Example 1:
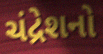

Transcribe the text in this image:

ચંદ્રેશનો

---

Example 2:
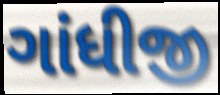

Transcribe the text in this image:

ગાંધીજી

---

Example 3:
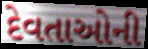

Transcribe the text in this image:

દેવતાઓની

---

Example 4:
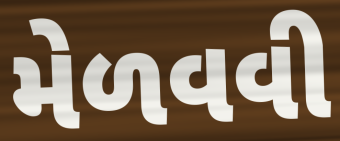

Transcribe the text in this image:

મેળવવી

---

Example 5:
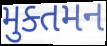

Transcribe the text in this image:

મુક્તમન